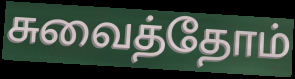
சுவைத்தோம்